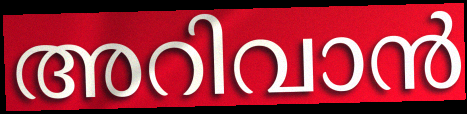
അറിവാൻ